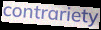
contrariety